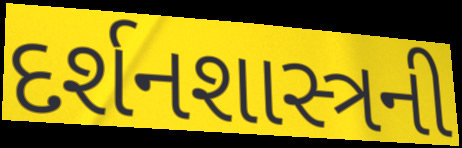
દર્શનશાસ્ત્રની